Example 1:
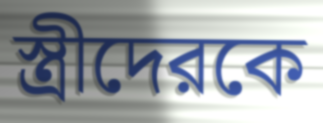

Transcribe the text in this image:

স্ত্রীদেরকে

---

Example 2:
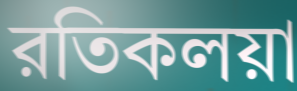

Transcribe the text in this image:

রতিকলয়া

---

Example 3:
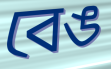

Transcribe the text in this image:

বেঙ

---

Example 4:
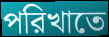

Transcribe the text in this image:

পরিখাতে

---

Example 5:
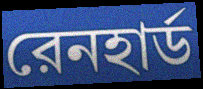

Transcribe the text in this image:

রেনহার্ড